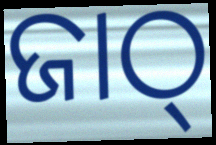
ଜାଠ୍